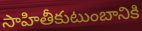
సాహితీకుటుంబానికి